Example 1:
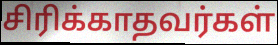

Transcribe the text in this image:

சிரிக்காதவர்கள்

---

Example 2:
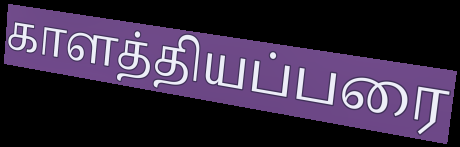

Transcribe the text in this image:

காளத்தியப்பரை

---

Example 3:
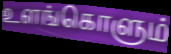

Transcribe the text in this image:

உளங்கொளும்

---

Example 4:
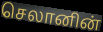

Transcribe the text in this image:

செலானின்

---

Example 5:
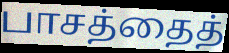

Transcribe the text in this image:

பாசத்தைத்